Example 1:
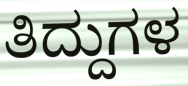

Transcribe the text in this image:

ತಿದ್ದುಗಳ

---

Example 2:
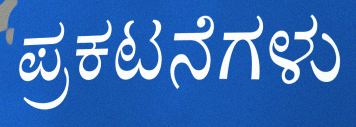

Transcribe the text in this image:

ಪ್ರಕಟನೆಗಳು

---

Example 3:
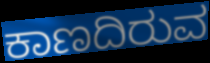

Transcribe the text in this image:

ಕಾಣದಿರುವ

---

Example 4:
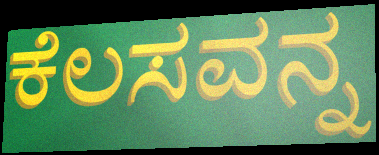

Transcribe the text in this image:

ಕೆಲಸವನ್ನ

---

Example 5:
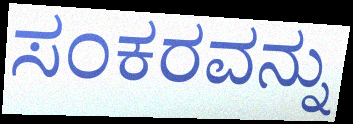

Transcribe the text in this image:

ಸಂಕರವನ್ನು